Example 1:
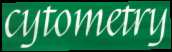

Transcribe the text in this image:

cytometry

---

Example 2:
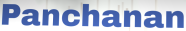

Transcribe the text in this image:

Panchanan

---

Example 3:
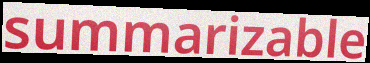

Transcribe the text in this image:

summarizable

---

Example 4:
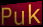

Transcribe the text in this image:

Puk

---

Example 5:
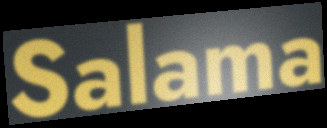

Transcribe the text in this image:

Salama